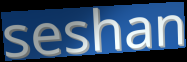
seshan